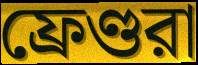
ফ্রেণ্ডরা